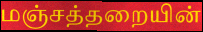
மஞ்சத்தறையின்